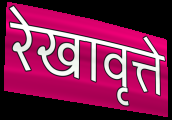
रेखावृत्ते